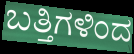
ಬತ್ತಿಗಳಿಂದ